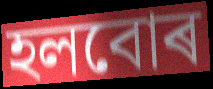
হলবোৰ